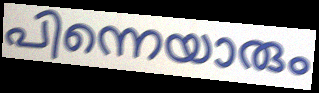
പിന്നെയാരും